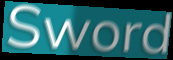
Sword